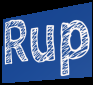
Rup